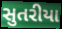
સુતરીયા